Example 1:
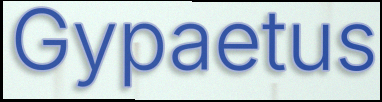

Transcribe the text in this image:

Gypaetus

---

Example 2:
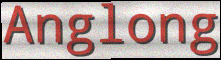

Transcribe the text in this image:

Anglong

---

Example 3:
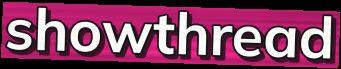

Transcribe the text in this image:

showthread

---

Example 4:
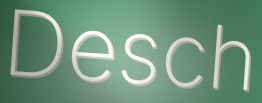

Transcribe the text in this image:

Desch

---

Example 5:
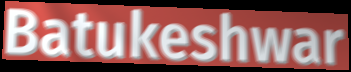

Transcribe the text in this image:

Batukeshwar